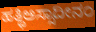
ಹತ್ಥಿಅಸ್ಸಾದೀನಂ